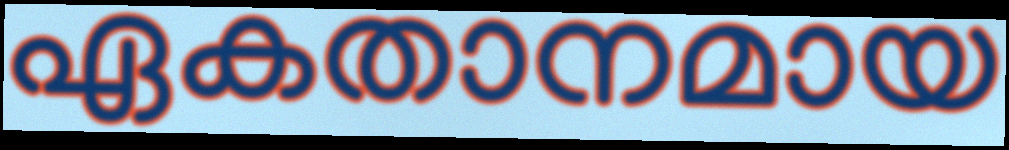
ഏകതാനമായ